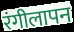
रंगीलापन